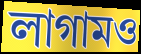
লাগামও